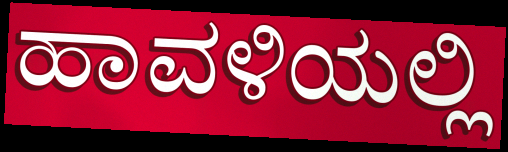
ಹಾವಳಿಯಲ್ಲಿ